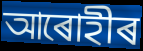
আৰোহীৰ